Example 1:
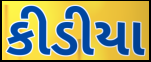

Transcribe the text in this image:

કીડીયા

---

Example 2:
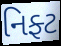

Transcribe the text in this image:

નિફ્ટ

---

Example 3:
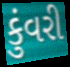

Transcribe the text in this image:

કુંવરી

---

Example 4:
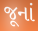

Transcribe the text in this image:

જૂનાં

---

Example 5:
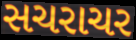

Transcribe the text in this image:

સચરાચર